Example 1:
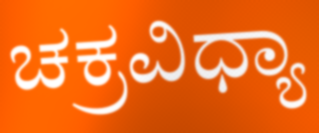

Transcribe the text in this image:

ಚಕ್ರವಿಧ್ಯಾ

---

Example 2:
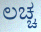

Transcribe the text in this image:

ಲಚ್ಚ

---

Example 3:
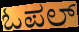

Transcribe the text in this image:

ಓಪಲ್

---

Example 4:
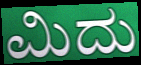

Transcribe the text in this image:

ಮಿದು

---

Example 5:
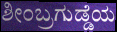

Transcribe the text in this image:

ಶೀಂಬ್ರಗುಡ್ಡೆಯ